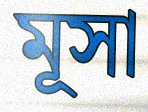
মূসা